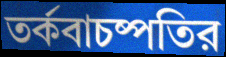
তর্কবাচষ্পতির